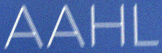
AAHL